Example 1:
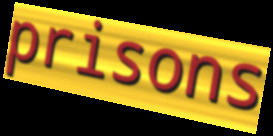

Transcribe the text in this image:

prisons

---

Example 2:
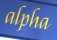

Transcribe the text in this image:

alpha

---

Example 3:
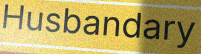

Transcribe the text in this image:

Husbandary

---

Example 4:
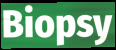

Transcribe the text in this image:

Biopsy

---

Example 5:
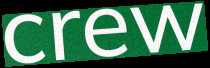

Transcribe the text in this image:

crew